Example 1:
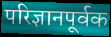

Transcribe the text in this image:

परिज्ञानपूर्वक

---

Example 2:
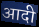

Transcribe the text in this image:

आदी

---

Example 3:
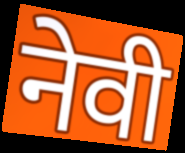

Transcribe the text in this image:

नेवी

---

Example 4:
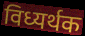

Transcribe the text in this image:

विध्यर्थक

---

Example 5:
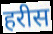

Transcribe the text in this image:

हरीस